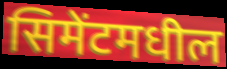
सिमेंटमधील